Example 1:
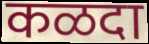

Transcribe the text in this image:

कळदा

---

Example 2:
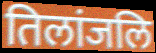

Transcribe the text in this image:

तिलांजलि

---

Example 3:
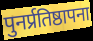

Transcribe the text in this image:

पुनर्प्रतिष्ठापना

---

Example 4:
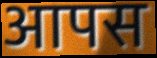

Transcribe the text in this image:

आपस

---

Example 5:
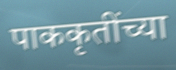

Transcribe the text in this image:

पाककृतींच्या